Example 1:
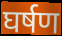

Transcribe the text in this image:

घर्षण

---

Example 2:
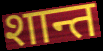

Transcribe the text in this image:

शान्त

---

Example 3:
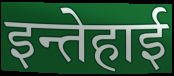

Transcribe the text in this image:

इन्तेहाई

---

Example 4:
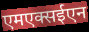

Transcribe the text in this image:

एमएक्सईएन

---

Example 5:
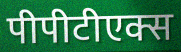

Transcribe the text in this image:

पीपीटीएक्स